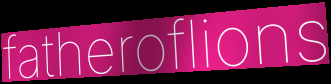
fatheroflions